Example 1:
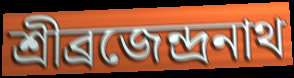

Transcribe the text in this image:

শ্রীব্রজেন্দ্রনাথ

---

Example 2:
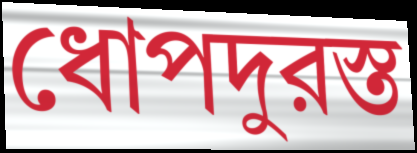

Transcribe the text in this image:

ধোপদুরস্ত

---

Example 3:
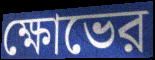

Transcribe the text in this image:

ক্ষোভের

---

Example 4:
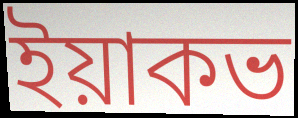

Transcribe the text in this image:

ইয়াকভ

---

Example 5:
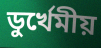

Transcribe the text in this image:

ডুর্খেমীয়